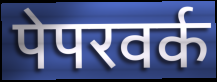
पेपरवर्क